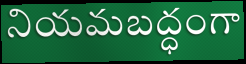
నియమబద్ధంగా